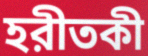
হরীতকী